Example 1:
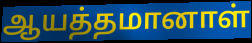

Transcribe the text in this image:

ஆயத்தமானாள்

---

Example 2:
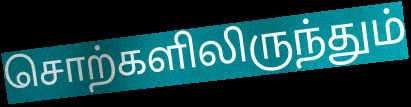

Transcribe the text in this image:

சொற்களிலிருந்தும்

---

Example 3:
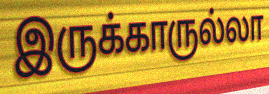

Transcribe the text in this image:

இருக்காருல்லா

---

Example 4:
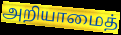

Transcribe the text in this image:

அறியாமைத்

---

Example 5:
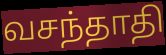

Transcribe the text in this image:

வசந்தாதி